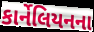
કાર્નેલિયનના